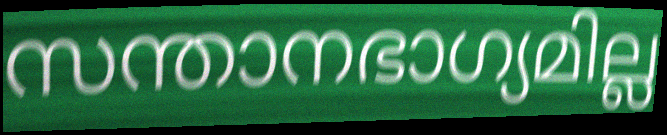
സന്താനഭാഗ്യമില്ല